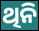
ଥିନି